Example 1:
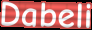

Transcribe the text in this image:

Dabeli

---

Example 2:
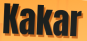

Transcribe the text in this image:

Kakar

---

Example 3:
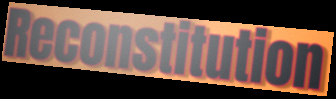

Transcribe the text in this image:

Reconstitution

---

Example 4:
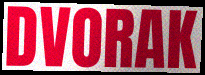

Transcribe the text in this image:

DVORAK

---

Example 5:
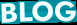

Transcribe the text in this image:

BLOG